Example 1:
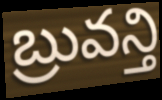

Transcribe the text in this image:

బ్రువన్తి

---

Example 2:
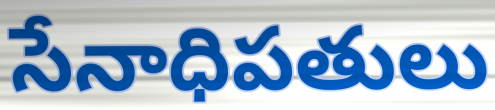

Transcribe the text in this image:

సేనాధిపతులు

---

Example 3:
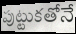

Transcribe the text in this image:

పుట్టుకతోనే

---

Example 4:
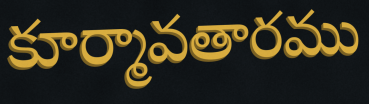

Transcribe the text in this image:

కూర్మావతారము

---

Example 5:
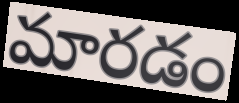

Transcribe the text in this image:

మారడం